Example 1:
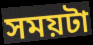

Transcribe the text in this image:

সময়টা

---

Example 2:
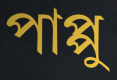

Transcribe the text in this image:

পাপ্পু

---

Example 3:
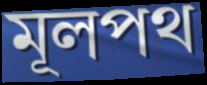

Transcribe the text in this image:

মূলপথ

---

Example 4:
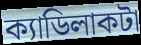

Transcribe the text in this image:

ক্যাডিলাকটা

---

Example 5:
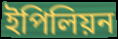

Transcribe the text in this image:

ইপিলিয়ন